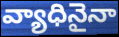
వ్యాధినైనా